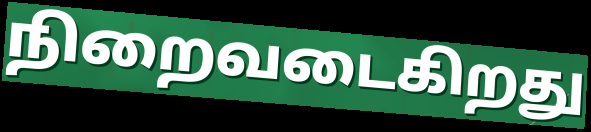
நிறைவடைகிறது